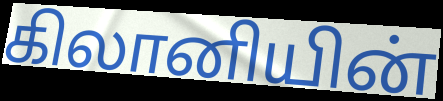
கிலானியின்